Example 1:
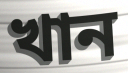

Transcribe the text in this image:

খান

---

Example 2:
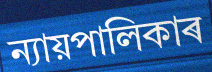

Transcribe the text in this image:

ন্যায়পালিকাৰ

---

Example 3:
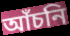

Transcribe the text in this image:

আঁচনি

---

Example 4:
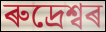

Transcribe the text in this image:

ৰুদ্ৰেশ্বৰ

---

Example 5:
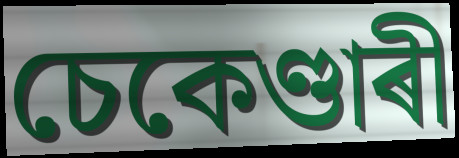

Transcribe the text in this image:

চেকেণ্ডাৰী